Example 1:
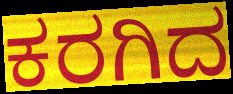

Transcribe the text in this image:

ಕರಗಿದ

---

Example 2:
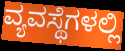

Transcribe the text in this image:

ವ್ಯವಸ್ಥೆಗಳಲ್ಲಿ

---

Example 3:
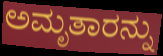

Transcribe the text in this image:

ಅಮೃತಾರನ್ನು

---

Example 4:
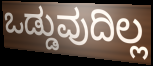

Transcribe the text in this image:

ಒಡ್ಡುವುದಿಲ್ಲ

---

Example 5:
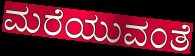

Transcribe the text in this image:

ಮರೆಯುವಂತೆ